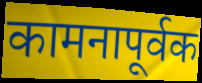
कामनापूर्वक